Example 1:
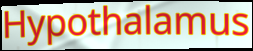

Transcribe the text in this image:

Hypothalamus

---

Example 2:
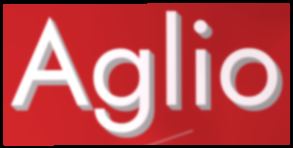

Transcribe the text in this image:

Aglio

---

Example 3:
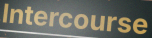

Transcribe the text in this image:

Intercourse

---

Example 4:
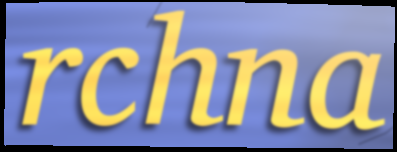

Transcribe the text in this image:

rchna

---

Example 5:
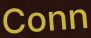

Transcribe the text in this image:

Conn